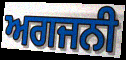
ਅਗਜਨੀ